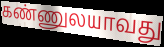
கண்ணுலயாவது